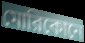
মোরিকোনে